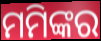
ମମିଙ୍କର